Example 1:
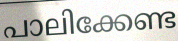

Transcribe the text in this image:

പാലിക്കേണ്ട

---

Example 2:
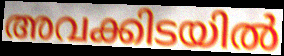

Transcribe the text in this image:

അവക്കിടയിൽ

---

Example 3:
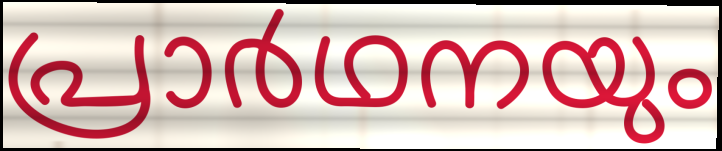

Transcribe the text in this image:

പ്രാർഥനയും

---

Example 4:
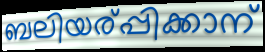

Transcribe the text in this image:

ബലിയര്പ്പിക്കാന്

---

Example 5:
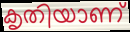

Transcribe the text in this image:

കൃതിയാണ്